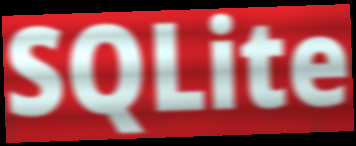
SQLite